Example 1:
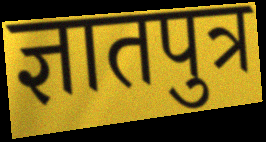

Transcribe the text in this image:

ज्ञातपुत्र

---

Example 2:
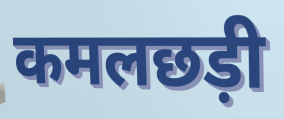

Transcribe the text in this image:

कमलछड़ी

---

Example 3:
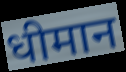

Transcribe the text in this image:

धीमान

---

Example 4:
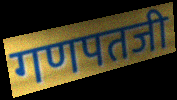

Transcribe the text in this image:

गणपतजी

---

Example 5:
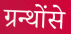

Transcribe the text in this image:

ग्रन्थोंसे